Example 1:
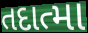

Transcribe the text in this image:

તદાત્મા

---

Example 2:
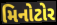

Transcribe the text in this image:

મિનોટોર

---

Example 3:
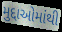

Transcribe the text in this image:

મુદ્દાઓમાંથી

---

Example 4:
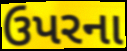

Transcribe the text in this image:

ઉપરના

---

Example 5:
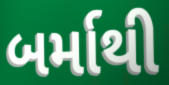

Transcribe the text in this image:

બર્માથી